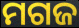
ମଗଜ